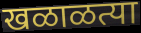
खळाळत्या